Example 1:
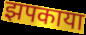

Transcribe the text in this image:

झपकाया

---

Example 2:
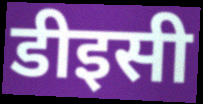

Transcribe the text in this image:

डीइसी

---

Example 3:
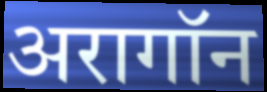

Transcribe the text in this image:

अरागॉन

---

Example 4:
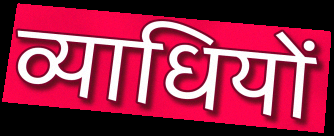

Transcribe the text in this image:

व्याधियों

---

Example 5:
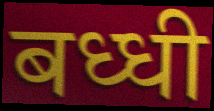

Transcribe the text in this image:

बध्धी